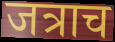
जत्राच